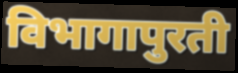
विभागापुरती